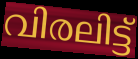
വിരലിട്ട്